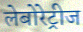
लेबोरेट्रीज